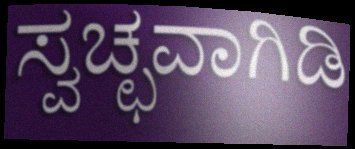
ಸ್ವಚ್ಛವಾಗಿಡಿ